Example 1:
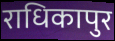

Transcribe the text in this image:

राधिकापुर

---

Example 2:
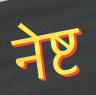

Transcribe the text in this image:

नेष्ट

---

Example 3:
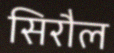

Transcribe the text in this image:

सिरौल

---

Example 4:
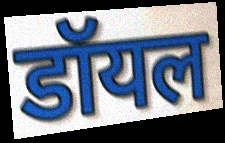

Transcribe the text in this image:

डॉयल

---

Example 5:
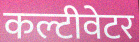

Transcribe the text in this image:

कल्टीवेटर